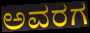
ಅವರಗ